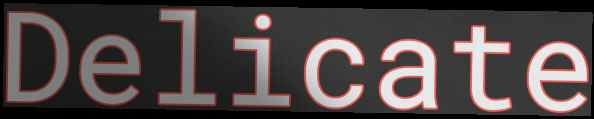
Delicate